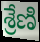
శ్రేణి